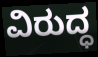
ವಿರುದ್ಧ